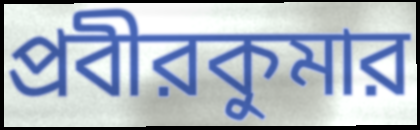
প্রবীরকুমার